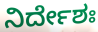
ನಿರ್ದೇಶಃ